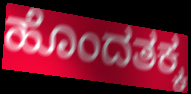
ಹೊಂದತಕ್ಕ